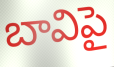
బావిపై